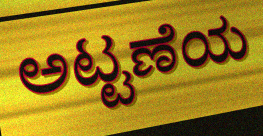
ಅಟ್ಟಣೆಯ